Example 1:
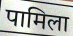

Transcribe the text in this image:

पामिला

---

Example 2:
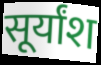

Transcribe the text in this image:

सूर्यांश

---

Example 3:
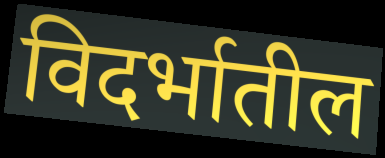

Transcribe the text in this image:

विदर्भातील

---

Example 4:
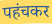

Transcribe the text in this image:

पहंचकर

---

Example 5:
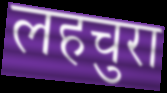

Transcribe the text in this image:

लहचुरा